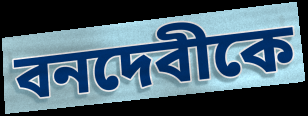
বনদেবীকে